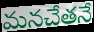
మనచేతనే